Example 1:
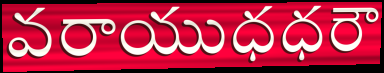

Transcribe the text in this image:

వరాయుధధరౌ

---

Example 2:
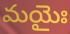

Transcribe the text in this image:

మయైః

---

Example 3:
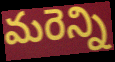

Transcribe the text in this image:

మరెన్ని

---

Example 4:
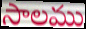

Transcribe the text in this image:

సాలము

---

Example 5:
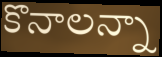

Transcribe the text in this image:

కొనాలన్నా